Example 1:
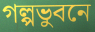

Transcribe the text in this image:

গল্পভুবনে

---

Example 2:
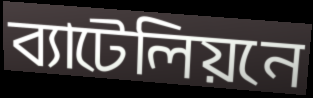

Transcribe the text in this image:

ব্যাটেলিয়নে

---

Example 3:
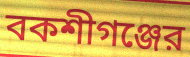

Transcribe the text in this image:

বকশীগঞ্জের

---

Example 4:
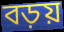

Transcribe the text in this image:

বড়য়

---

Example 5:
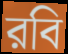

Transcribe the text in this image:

রবি